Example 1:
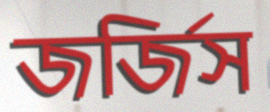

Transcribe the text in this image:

জর্জিস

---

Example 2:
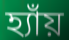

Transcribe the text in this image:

হ্যাঁয়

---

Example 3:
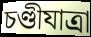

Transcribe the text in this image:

চণ্ডীযাত্রা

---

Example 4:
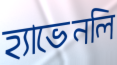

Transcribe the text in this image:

হ্যাভেনলি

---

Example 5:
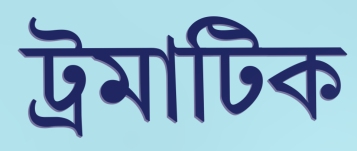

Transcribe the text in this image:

ট্রমাটিক